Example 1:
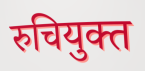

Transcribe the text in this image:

रुचियुक्त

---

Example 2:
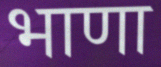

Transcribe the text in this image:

भाणा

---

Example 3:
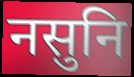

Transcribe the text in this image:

नसुनि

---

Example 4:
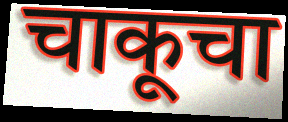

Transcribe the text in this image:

चाकूचा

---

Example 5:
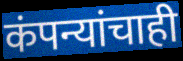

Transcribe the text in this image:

कंपन्यांचाही